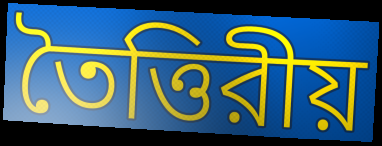
তৈত্তিরীয়